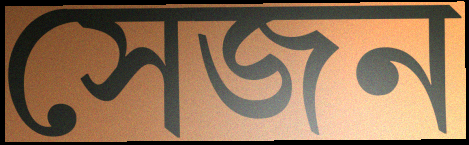
সেজন